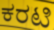
ಕರಟಿ